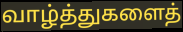
வாழ்த்துகளைத்